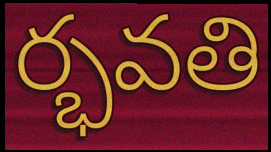
ర్భవతి